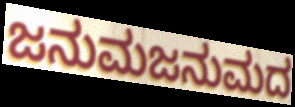
ಜನುಮಜನುಮದ